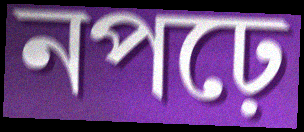
নপঢ়ে